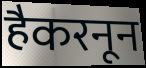
हैकरनून